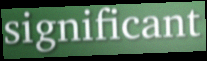
significant